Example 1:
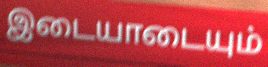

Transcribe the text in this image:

இடையாடையும்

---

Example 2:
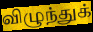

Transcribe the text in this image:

விழுந்துக்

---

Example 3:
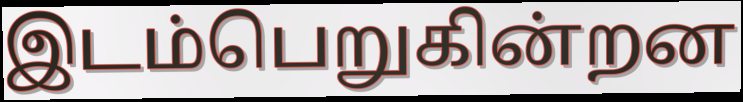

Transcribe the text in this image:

இடம்பெறுகின்றன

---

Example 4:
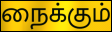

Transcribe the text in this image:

நைக்கும்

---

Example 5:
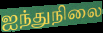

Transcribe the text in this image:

ஐந்துநிலை